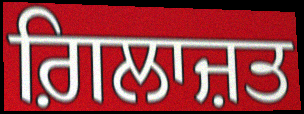
ਗ਼ਿਲਾਜ਼ਤ